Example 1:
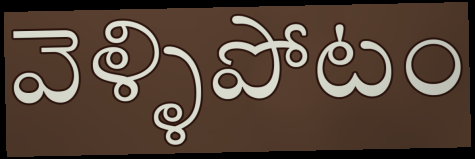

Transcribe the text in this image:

వెళ్ళిపోటం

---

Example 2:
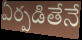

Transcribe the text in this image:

ఏర్పడితేనే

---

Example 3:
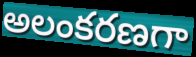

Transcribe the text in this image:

అలంకరణగా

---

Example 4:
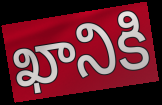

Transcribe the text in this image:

ఖానికి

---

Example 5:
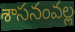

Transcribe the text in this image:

శాసనంవల్ల